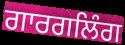
ਗਾਰਗਲਿੰਗ